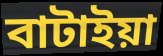
বাটাইয়া